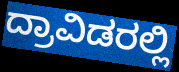
ದ್ರಾವಿಡರಲ್ಲಿ